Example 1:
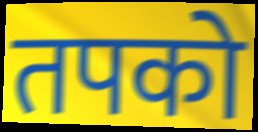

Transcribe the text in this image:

तपको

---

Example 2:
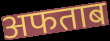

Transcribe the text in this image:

अफताब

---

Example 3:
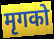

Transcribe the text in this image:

मृगको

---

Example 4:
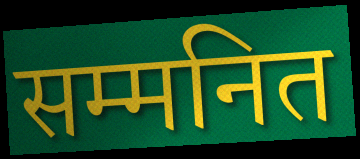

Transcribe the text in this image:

सम्मनित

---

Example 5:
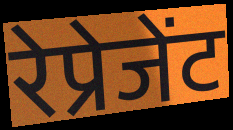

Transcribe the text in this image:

रेप्रेजेंट